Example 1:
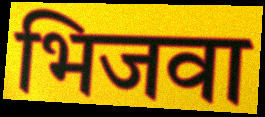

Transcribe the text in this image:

भिजवा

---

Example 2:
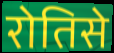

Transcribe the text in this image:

रोतिसे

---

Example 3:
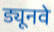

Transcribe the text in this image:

ड्यूनवे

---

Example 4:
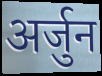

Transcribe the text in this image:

अर्जुन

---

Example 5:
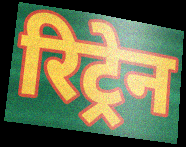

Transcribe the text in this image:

रिट्रेन